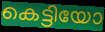
കെട്ടിയോ